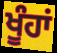
ਖੂੰਹਾਂ